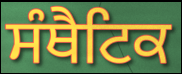
ਸੰਥੈਟਿਕ